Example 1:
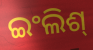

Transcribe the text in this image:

ଇଂଲିଶ୍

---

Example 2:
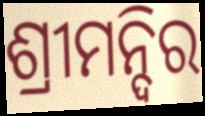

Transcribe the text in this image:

ଶ୍ରୀମନ୍ଦିର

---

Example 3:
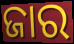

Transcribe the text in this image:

ଜାର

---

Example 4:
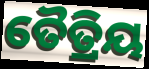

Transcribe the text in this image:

ତୈତ୍ରିୟ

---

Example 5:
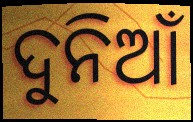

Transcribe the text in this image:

ଦୁନିଆଁ